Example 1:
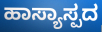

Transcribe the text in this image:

ಹಾಸ್ಯಾಸ್ಪದ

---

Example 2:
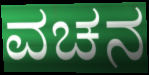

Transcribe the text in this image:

ವಚನ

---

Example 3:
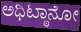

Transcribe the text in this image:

ಅಧಿಟ್ಠಾನೋ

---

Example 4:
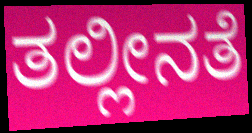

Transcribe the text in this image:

ತಲ್ಲೀನತೆ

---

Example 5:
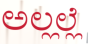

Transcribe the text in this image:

ಅಲ್ಲಲ್ಲೆ